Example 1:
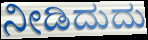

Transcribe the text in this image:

ನೀಡಿದುದು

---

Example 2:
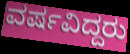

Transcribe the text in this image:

ವರ್ಷವಿದ್ದರು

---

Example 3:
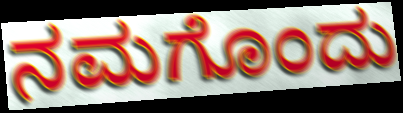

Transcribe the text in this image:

ನಮಗೊಂದು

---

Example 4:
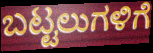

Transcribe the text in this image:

ಬಟ್ಟಲುಗಳಿಗೆ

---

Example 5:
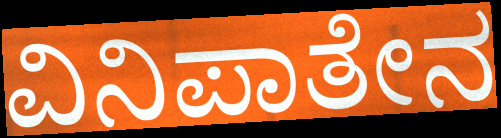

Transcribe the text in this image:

ವಿನಿಪಾತೇನ